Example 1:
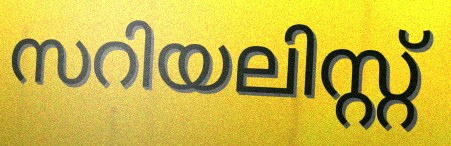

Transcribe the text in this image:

സറിയലിസ്റ്റ്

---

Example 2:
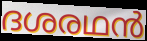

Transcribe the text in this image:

ദശരഥൻ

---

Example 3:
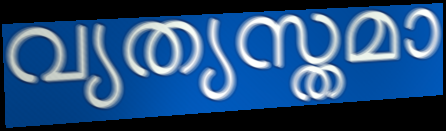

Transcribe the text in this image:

വ്യത്യസ്തമാ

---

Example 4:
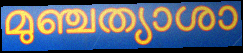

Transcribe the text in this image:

മുഞ്ചത്യാശാ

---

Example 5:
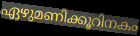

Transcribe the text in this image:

ഏഴുമണിക്കൂറിനകം